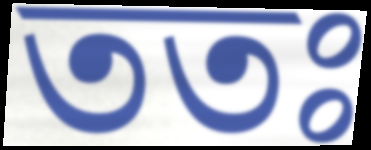
ততঃ